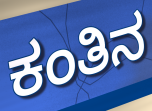
ಕಂತಿನ